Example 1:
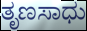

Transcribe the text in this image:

ತೃಣಸಾಧು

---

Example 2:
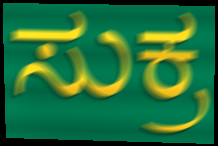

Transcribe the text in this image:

ಸುಕ್ರ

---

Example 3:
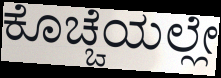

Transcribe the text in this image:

ಕೊಚ್ಚೆಯಲ್ಲೇ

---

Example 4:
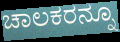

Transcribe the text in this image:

ಚಾಲಕರನ್ನೂ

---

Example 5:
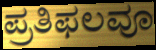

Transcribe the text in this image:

ಪ್ರತಿಫಲವೂ